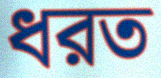
ধরত